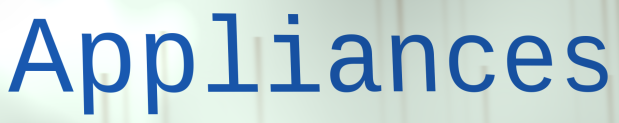
Appliances